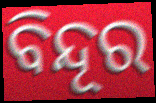
ବିନ୍ଦୂର